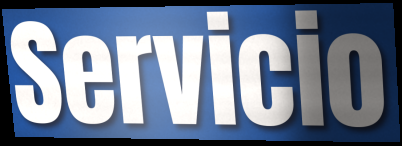
Servicio